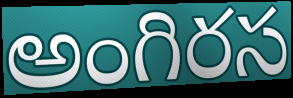
అంగిరస